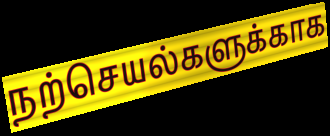
நற்செயல்களுக்காக